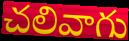
చలివాగు